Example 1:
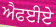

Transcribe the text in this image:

ਐਫਈਏ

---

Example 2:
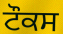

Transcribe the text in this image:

ਟੌਕਸ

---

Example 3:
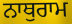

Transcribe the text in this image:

ਨਾਥੁਰਾਮ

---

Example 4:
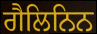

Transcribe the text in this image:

ਗੈਲਿਨਿਨ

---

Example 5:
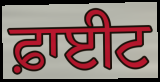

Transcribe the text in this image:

ਫ਼ਾਈਟ